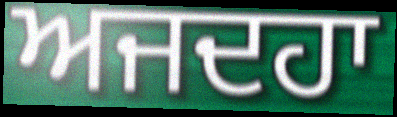
ਅਜਦਹਾ